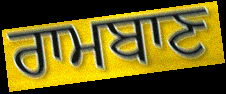
ਰਾਮਬਾਣ